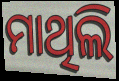
ମାଥିଲି